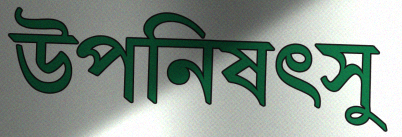
উপনিষৎসু